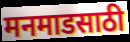
मनमाडसाठी